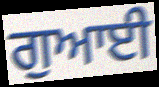
ਗੁਆਈ